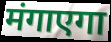
मंगाएगा